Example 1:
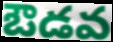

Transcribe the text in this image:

ఔడవ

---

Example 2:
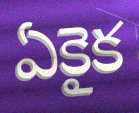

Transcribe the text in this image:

ఏకైక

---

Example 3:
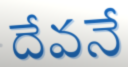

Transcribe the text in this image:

దేవనే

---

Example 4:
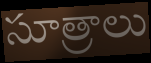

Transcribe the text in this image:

సూత్రాలు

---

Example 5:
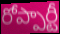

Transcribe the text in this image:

రోప్పార్టీ